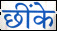
छींके